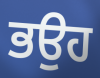
ਭਉਹ